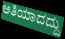
ಅತಿಯಾದದ್ದು